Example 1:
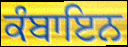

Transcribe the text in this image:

ਕੰਬਾਇਨ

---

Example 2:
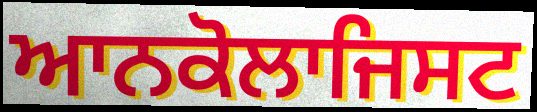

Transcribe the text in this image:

ਆਨਕੋਲਾਜਿਸਟ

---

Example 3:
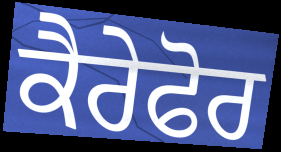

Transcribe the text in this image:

ਕੈਰੇਫੋਰ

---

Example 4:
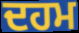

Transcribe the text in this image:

ਦਹਮ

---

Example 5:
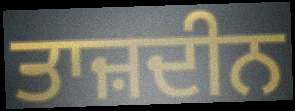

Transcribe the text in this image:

ਤਾਜ਼ਦੀਨ